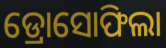
ଡ୍ରୋସୋଫିଲା